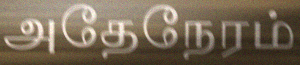
அதேநேரம்